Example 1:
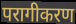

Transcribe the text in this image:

परागीकरण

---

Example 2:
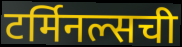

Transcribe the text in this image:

टर्मिनल्सची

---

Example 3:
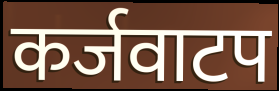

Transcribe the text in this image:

कर्जवाटप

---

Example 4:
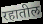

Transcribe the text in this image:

रहातील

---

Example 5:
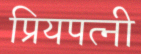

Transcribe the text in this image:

प्रियपत्नी